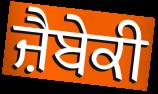
ਜ਼ੈਬੇਕੀ